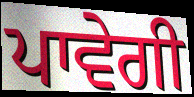
ਪਾਵੇਗੀ